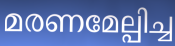
മരണമേല്പിച്ച